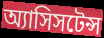
অ্যাসিসটেন্স